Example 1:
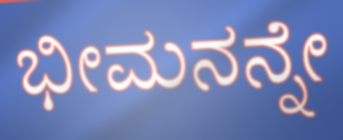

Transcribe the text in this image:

ಭೀಮನನ್ನೇ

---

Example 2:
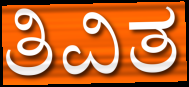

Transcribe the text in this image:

ತಿವಿತ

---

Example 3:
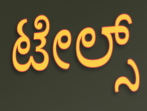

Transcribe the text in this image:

ಟೇಲ್ಸ್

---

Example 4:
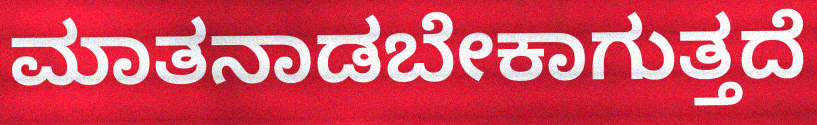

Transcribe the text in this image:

ಮಾತನಾಡಬೇಕಾಗುತ್ತದೆ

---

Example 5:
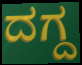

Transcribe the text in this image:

ದಗ್ದ